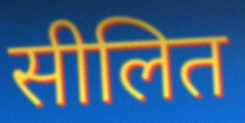
सीलित